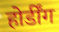
होर्डींग